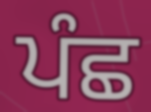
ਪੰਛ